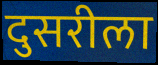
दुसरीला